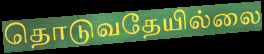
தொடுவதேயில்லை